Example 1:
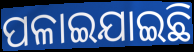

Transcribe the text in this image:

ପଳାଇଯାଇଛି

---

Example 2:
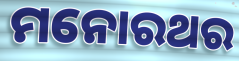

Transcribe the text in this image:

ମନୋରଥର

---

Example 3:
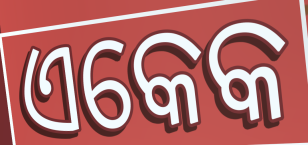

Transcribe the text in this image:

ଏକେକ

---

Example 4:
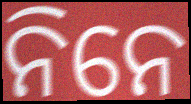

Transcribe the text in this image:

ନିନେ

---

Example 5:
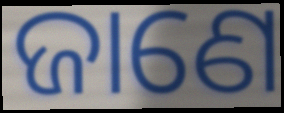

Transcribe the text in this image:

ଜାଣେ